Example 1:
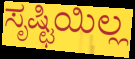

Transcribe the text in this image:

ಸೃಷ್ಟಿಯಿಲ್ಲ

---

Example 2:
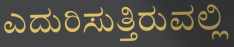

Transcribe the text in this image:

ಎದುರಿಸುತ್ತಿರುವಲ್ಲಿ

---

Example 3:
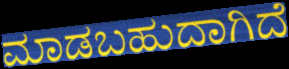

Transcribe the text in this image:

ಮಾಡಬಹುದಾಗಿದೆ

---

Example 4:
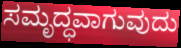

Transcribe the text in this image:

ಸಮೃದ್ಧವಾಗುವುದು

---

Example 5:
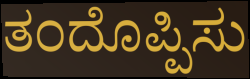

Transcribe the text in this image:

ತಂದೊಪ್ಪಿಸು